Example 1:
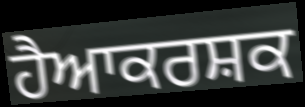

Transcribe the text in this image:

ਹੈਆਕਰਸ਼ਕ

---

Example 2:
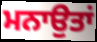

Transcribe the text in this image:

ਮਨਾਉਤਾਂ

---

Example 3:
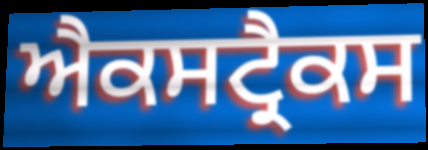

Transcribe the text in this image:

ਐਕਸਟ੍ਰੈਕਸ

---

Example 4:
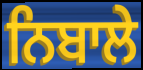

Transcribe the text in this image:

ਨਿਬਾਲੇ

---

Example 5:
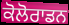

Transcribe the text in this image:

ਕੋਲੋਰਾਡਨ